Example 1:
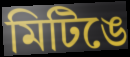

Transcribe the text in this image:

মিটিঙে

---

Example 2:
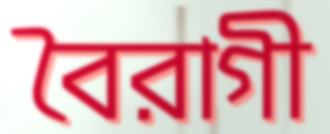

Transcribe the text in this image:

বৈরাগী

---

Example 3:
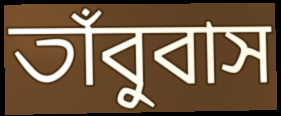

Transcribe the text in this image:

তাঁবুবাস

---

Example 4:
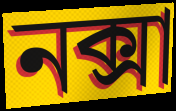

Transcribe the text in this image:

নক্সা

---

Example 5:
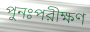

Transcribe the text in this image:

পুনঃপরীক্ষণ